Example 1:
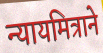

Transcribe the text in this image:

न्यायमित्राने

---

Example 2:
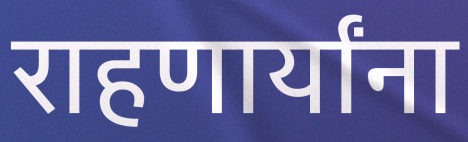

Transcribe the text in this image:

राहणार्यांना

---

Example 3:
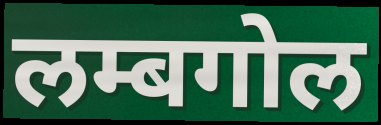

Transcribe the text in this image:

लम्बगोल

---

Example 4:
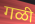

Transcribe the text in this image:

गळी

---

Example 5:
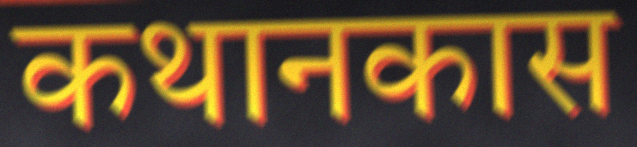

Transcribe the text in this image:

कथानकास